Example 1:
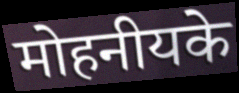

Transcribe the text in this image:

मोहनीयके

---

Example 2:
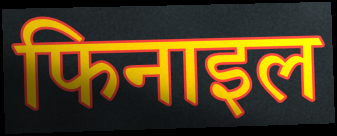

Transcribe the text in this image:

फिनाइल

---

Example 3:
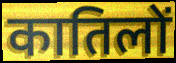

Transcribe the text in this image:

कातिलों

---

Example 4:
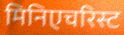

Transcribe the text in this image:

मिनिएचरिस्ट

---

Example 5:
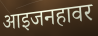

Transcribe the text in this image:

आइजनहावर